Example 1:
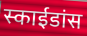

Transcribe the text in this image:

स्काईडांस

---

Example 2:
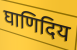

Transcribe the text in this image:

घाणिदिय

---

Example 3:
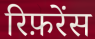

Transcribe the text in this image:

रिफ़रेंस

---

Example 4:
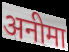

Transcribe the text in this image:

अनीमा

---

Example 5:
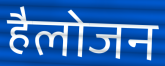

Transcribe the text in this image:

हैलोजन